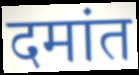
दमांत